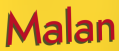
Malan